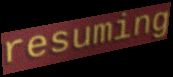
resuming